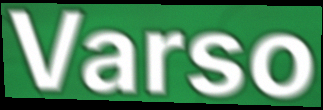
Varso